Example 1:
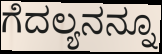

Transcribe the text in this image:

ಗೆದಲ್ಯನನ್ನೂ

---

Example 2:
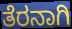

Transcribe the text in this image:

ತೆರನಾಗಿ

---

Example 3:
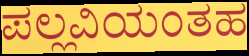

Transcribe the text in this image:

ಪಲ್ಲವಿಯಂತಹ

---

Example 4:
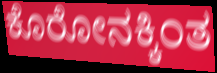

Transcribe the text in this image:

ಕೊರೋನಕ್ಕಿಂತ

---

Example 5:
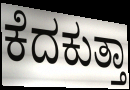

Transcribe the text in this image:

ಕೆದಕುತ್ತಾ